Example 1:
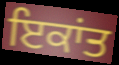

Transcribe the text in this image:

ਇਕਾਂਤ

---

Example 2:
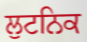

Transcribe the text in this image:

ਲੁਟਨਿਕ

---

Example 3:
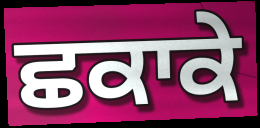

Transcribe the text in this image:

ਛਕਾਕੇ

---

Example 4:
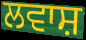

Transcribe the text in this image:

ਲਵਾਸ਼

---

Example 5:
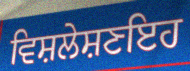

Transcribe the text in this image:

ਵਿਸ਼ਲੇਸ਼ਣਇਹ